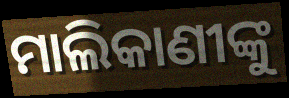
ମାଲିକାଣୀଙ୍କୁ